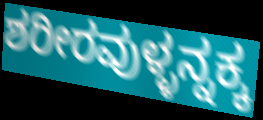
ಶರೀರವುಳ್ಳನ್ನಕ್ಕ